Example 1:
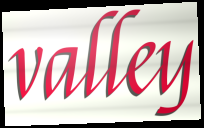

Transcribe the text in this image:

valley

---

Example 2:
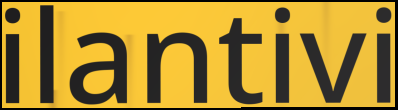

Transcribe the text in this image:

ilantivi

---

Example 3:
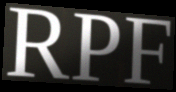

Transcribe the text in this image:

RPF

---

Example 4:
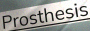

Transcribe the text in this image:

Prosthesis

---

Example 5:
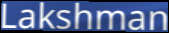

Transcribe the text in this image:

Lakshman